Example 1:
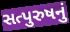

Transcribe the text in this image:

સત્પુરુષનું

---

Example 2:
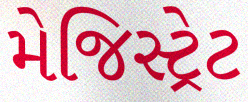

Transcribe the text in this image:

મેજિસ્ટ્રેટ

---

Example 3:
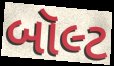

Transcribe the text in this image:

બૉલ્ટ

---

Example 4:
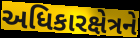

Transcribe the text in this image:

અધિકારક્ષેત્રને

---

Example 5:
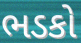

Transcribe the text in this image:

ભડકો